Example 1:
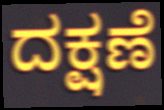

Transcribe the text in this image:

ದಕ್ಷಣೆ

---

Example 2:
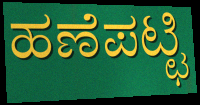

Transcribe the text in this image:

ಹಣೆಪಟ್ಟಿ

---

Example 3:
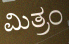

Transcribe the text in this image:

ಮಿತ್ರಂ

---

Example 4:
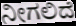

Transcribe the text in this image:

ನೀಗಲಿದೆ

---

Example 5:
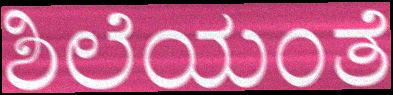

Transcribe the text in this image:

ಶಿಲೆಯಂತೆ